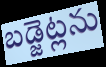
బడ్జెట్లను